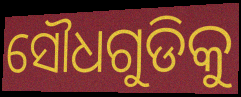
ସୌଧଗୁଡିକୁ